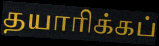
தயாரிக்கப்